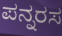
ಪನ್ನರಸ